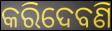
କରିଦେବଣି